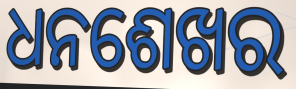
ଧନଶେଖର